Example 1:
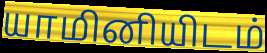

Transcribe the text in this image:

யாமினியிடம்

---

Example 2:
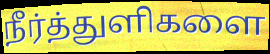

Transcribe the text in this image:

நீர்த்துளிகளை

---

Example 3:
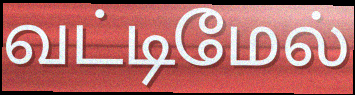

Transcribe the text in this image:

வட்டிமேல்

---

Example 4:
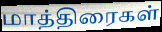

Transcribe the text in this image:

மாத்திரைகள்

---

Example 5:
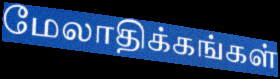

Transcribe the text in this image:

மேலாதிக்கங்கள்